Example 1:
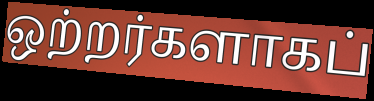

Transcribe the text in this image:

ஒற்றர்களாகப்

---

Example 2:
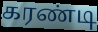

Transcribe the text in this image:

கரண்டி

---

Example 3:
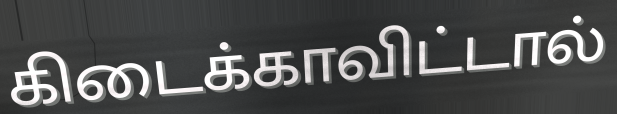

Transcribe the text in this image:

கிடைக்காவிட்டால்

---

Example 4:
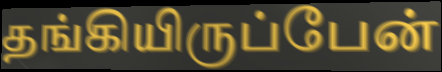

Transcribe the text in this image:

தங்கியிருப்பேன்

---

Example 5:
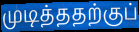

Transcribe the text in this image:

முடித்ததற்குப்